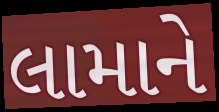
લામાને